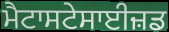
ਮੈਟਾਸਟੇਸਾਈਜ਼ਡ